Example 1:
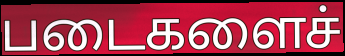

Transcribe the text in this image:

படைகளைச்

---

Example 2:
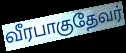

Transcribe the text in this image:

வீரபாகுதேவர்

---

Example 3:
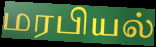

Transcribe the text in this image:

மரபியல்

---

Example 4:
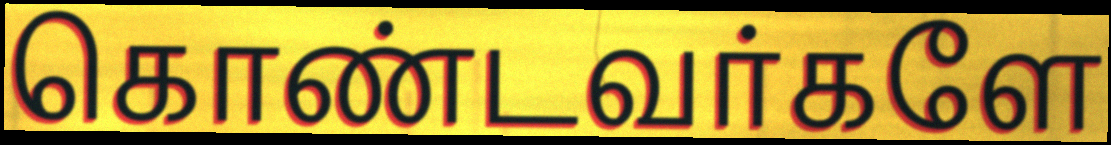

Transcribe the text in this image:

கொண்டவர்களே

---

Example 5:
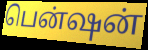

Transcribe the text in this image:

பென்ஷன்